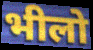
भीलो